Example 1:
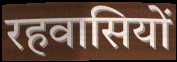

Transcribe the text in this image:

रहवासियों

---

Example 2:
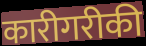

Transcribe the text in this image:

कारीगरीकी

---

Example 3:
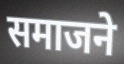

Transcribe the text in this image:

समाजने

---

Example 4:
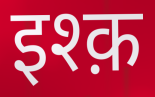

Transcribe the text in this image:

इश्क़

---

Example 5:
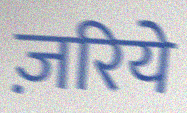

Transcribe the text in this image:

ज़रिये